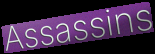
Assassins